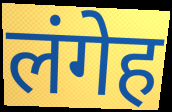
लंगेह